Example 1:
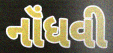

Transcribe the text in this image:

નૉંધવી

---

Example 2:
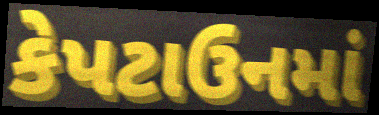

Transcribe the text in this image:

કેપટાઉનમાં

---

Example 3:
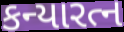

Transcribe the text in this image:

કન્યારત્ન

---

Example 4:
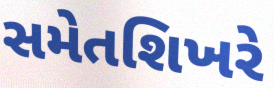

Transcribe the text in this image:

સમેતશિખરે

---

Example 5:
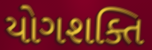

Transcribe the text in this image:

યોગશક્તિ